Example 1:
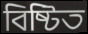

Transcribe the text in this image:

বিষ্টিত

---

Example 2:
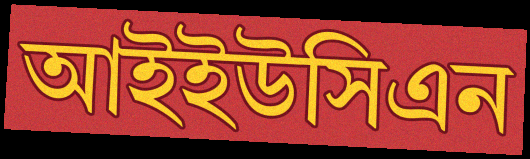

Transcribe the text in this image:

আইইউসিএন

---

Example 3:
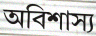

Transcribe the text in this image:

অবিশাস্য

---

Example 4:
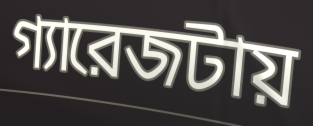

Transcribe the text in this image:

গ্যারেজটায়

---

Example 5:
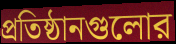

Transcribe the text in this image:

প্রতিষ্ঠানগুলোর